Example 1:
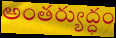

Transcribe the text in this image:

అంతర్యుద్ధం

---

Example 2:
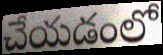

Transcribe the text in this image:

చేయడంలో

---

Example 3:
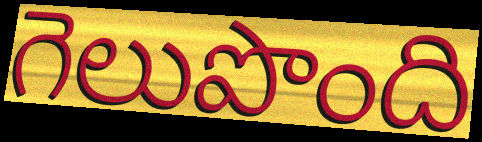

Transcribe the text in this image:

గెలుపొంది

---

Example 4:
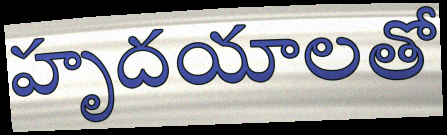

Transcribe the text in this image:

హృదయాలతో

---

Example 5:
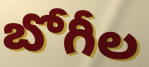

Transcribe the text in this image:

బోగీల